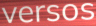
versos